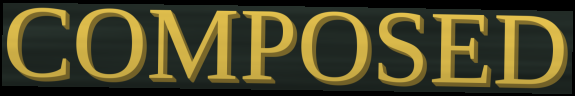
COMPOSED